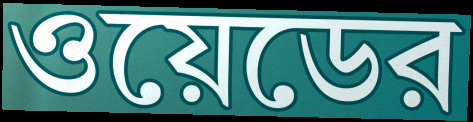
ওয়েডের